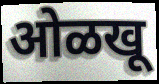
ओळखू